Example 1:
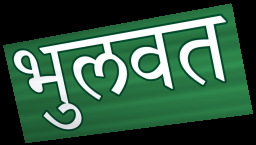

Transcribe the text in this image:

भुलवत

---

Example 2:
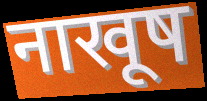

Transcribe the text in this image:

नाखूष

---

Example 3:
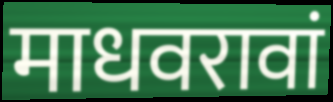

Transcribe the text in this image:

माधवरावां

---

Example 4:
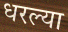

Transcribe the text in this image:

धरल्या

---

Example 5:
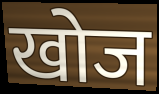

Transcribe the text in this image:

खोज